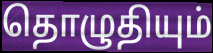
தொழுதியும்